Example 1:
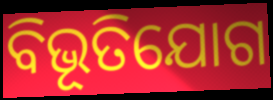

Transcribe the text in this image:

ବିଭୂତିଯୋଗ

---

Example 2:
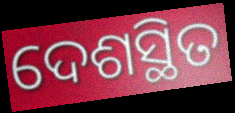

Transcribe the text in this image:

ଦେଶସ୍ଥିତ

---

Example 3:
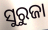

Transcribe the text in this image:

ସୁରୁଜା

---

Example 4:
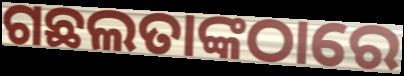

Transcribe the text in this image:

ଗଛଲତାଙ୍କଠାରେ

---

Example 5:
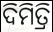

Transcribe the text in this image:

ଦିମିତ୍ରି